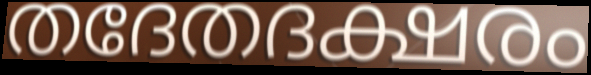
തദേതദക്ഷരം